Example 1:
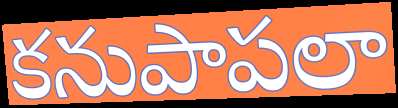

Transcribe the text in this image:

కనుపాపలా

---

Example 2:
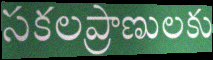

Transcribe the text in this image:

సకలప్రాణులకు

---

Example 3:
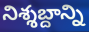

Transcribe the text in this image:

నిశ్శబ్దాన్ని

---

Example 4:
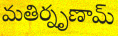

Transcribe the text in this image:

మతిర్నృణామ్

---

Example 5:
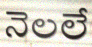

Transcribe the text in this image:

నెలలే